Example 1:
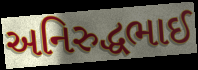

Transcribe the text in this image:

અનિરુદ્ધભાઈ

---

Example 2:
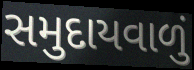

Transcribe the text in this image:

સમુદાયવાળું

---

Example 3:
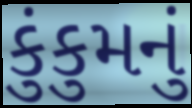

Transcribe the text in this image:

કુંકુમનું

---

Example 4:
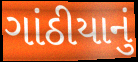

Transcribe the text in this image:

ગાંઠીયાનું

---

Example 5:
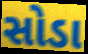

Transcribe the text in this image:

સોડા